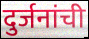
दुर्जनांची